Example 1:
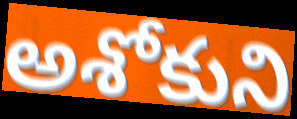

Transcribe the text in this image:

అశోకుని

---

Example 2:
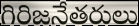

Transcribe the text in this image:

గిరిజనేతరులు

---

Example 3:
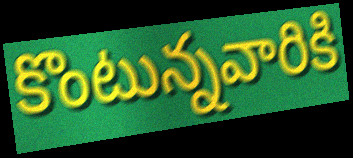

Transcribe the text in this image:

కొంటున్నవారికి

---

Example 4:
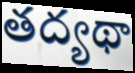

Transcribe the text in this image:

తద్యథా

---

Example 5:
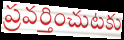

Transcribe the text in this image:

ప్రవర్తించుటకు